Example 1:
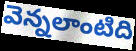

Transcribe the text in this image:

వెన్నలాంటిది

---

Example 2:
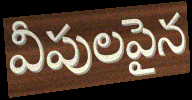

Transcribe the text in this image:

వీపులపైన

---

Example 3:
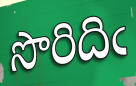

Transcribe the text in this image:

సొరిదిఁ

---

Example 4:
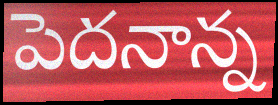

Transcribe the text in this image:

పెదనాన్న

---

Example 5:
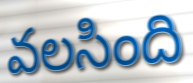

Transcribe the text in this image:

వలసింది